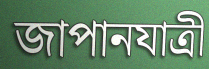
জাপানযাত্রী